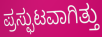
ಪ್ರಸ್ಫುಟವಾಗಿತ್ತು